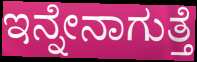
ಇನ್ನೇನಾಗುತ್ತೆ